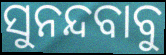
ସୁନନ୍ଦବାବୁ